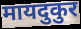
मायदुकुर